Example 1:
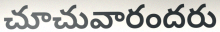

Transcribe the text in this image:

చూచువారందరు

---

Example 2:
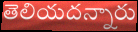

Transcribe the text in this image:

తెలియదన్నారు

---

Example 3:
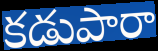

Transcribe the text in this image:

కడుపారా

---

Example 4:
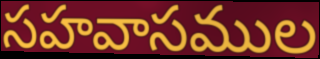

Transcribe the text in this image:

సహవాసముల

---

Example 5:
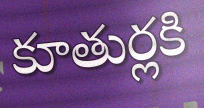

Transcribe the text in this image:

కూతుర్లకి